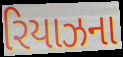
રિયાઝના